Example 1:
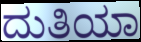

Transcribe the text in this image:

ದುತಿಯಾ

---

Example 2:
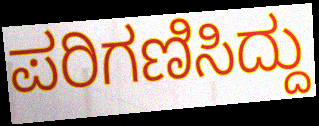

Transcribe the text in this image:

ಪರಿಗಣಿಸಿದ್ದು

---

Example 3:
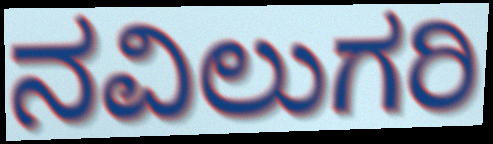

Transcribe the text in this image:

ನವಿಲುಗರಿ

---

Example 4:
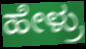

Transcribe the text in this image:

ಹೇಳ್ರು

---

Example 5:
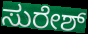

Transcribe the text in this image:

ಸುರೇಶ್